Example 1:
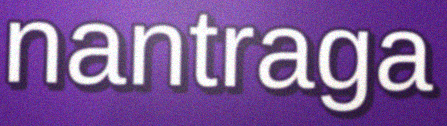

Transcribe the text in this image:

nantraga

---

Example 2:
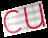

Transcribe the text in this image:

cu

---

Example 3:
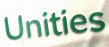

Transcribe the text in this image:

Unities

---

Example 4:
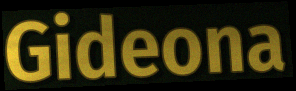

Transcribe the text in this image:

Gideona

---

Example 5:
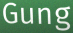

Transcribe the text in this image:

Gung